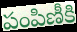
పంపిణీకి